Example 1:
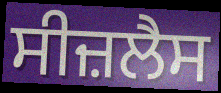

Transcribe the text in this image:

ਸੀਜ਼ਲੈਸ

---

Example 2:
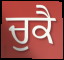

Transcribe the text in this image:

ਚੁਕੈ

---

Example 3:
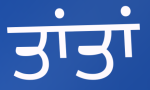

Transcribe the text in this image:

ਤਾਂਤਾਂ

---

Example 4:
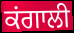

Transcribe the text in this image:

ਕਂਗਾਲੀ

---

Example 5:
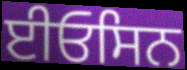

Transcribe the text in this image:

ਈਓਸਿਨ